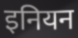
इनियन